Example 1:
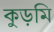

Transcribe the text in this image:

কুড়মি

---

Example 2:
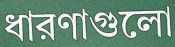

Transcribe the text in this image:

ধারণাগুলো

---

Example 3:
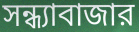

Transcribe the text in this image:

সন্ধ্যাবাজার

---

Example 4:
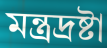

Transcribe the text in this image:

মন্ত্রদ্রষ্টা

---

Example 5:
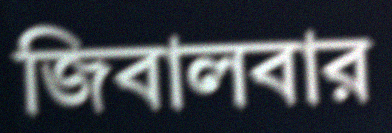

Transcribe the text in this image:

জিবালবার